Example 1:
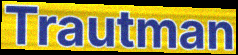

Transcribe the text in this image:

Trautman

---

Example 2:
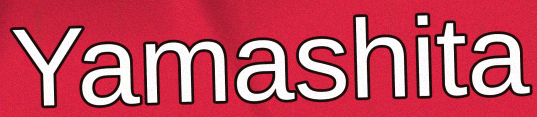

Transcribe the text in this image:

Yamashita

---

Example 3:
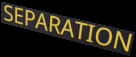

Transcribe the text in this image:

SEPARATION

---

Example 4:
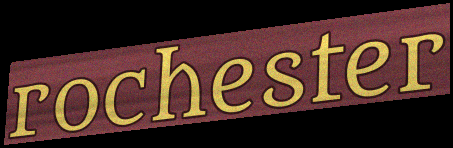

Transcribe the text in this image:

rochester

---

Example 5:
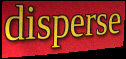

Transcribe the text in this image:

disperse